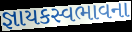
જ્ઞાયકસ્વભાવના